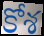
కోశ